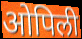
ओपिली